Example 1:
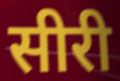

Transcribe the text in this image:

सीरी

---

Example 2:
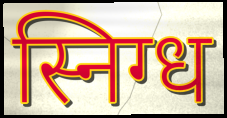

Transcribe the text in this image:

स्निग्ध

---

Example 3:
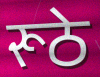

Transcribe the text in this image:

रूठे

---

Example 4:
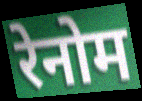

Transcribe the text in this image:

रेनोम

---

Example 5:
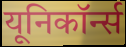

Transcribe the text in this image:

यूनिकॉर्न्स